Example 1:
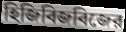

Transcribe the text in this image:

হিজিবিজবিজের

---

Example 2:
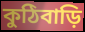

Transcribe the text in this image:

কুঠিবাড়ি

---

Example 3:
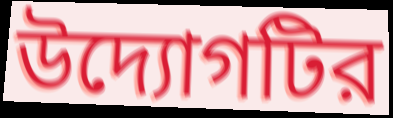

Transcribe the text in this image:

উদ্যোগটির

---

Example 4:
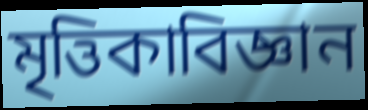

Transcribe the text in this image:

মৃত্তিকাবিজ্ঞান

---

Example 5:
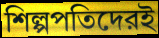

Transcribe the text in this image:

শিল্পপতিদেরই